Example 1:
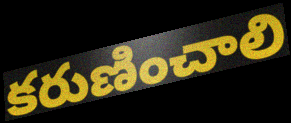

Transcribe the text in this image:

కరుణించాలి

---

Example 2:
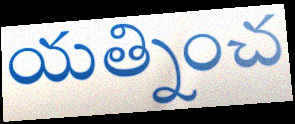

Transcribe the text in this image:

యత్నించ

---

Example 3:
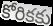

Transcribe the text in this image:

కోరికకు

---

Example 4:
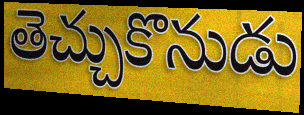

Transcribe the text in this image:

తెచ్చుకొనుడు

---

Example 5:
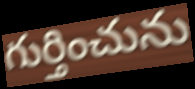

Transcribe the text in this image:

గుర్తించును